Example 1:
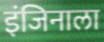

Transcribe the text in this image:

इंजिनाला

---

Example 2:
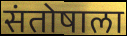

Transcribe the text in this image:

संतोषाला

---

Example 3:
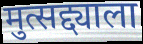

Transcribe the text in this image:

मुत्सद्द्याला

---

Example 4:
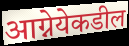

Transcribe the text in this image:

आग्नेयेकडील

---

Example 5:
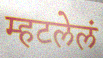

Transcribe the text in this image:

म्हटलेलं